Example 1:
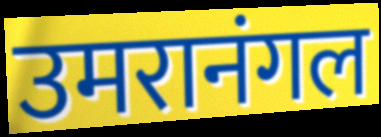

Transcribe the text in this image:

उमरानंगल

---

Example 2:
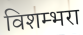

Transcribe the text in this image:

विशम्भरा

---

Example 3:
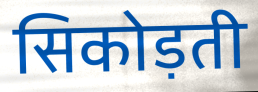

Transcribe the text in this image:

सिकोड़ती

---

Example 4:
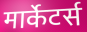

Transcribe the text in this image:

मार्केटर्स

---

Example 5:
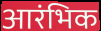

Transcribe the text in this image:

आरंभिक